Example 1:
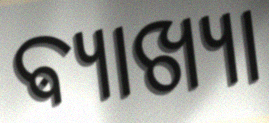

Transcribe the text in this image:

ଵ୍ୟାଖ୍ୟା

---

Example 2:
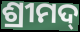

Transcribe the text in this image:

ଶ୍ରୀମଦ୍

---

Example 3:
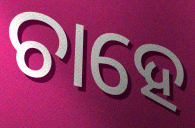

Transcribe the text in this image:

ଚାହେ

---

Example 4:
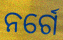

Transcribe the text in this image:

ନର୍ଗେ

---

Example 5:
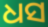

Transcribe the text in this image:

ଧସ